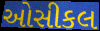
ઓસીકલ